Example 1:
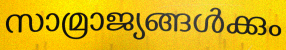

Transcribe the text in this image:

സാമ്രാജ്യങ്ങൾക്കും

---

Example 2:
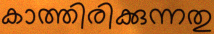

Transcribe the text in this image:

കാത്തിരിക്കുന്നതു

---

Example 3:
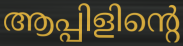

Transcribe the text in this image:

ആപ്പിളിന്റെ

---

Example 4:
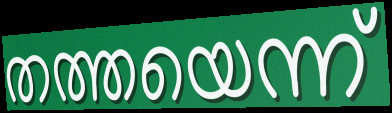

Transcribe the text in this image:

തത്തയെന്ന്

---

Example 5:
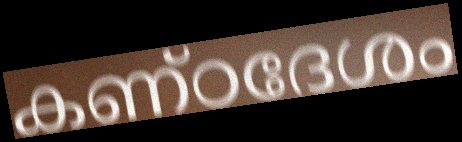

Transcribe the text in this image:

കണ്ഠദേശം